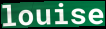
louise